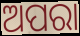
ଅପରା